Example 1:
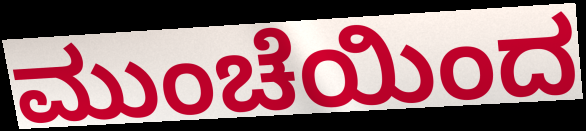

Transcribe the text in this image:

ಮುಂಚೆಯಿಂದ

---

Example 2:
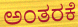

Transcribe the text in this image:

ಅಂತರಕೆ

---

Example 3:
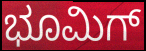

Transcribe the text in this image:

ಭೂಮಿಗ್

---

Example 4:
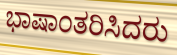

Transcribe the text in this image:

ಭಾಷಾಂತರಿಸಿದರು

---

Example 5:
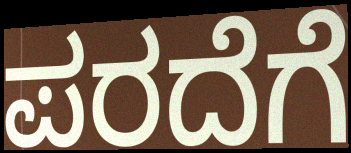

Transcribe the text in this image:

ಪರದೆಗೆ